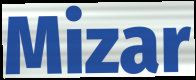
Mizar